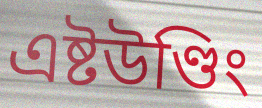
এষ্টউণ্ডিং